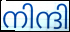
നിന്ദി